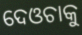
ଦେଓଚାକୁ